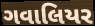
ગવાલિયર